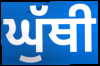
ਘੁੱਥੀ